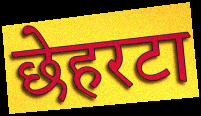
छेहरटा